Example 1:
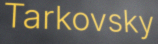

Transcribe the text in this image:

Tarkovsky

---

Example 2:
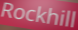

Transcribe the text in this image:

Rockhill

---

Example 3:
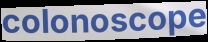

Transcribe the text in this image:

colonoscope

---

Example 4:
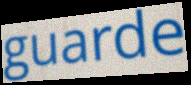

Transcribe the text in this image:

guarde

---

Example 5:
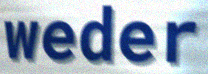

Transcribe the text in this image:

weder